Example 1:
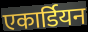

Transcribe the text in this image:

एकार्डियन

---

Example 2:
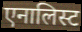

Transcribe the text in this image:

एनालिस्ट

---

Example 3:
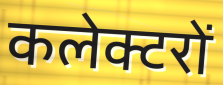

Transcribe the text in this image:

कलेक्टरों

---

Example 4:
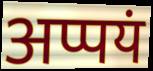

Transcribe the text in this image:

अप्पयं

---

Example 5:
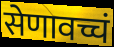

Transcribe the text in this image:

सेणावच्चं